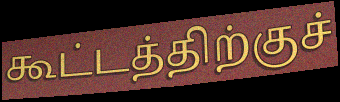
கூட்டத்திற்குச்